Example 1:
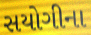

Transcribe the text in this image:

સયોગીના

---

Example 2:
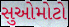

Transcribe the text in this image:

સુઓમોટો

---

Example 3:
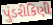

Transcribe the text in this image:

પુંડરીકિણી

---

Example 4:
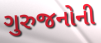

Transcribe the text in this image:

ગુરુજનોની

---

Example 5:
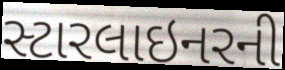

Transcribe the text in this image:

સ્ટારલાઇનરની